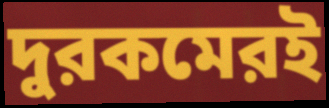
দুরকমেরই